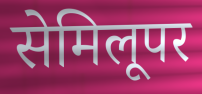
सेमिलूपर